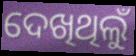
ଦେଖିଥିଲୁଁ